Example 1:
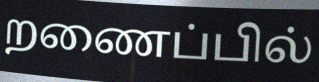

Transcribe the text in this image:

றணைப்பில்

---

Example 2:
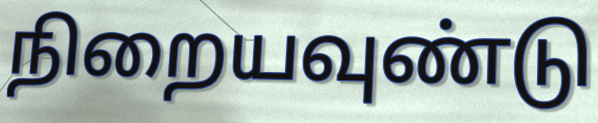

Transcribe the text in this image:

நிறையவுண்டு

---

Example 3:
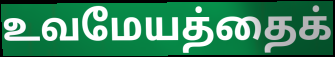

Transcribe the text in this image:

உவமேயத்தைக்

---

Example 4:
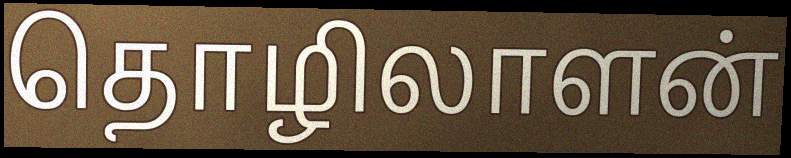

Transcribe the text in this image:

தொழிலாளன்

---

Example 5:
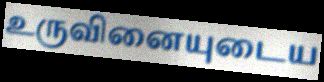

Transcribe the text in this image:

உருவினையுடைய